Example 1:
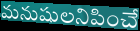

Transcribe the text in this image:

మనుషులనిపించే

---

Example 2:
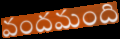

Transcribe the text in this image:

వందమంది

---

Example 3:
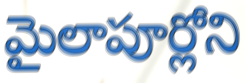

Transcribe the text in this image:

మైలాపూర్లోని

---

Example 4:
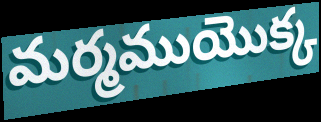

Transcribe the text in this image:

మర్మముయొక్క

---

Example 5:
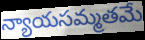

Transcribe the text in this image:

న్యాయసమ్మతమే